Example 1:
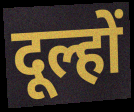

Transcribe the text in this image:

दूल्हों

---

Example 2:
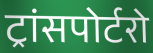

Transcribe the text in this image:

ट्रांसपोर्टरो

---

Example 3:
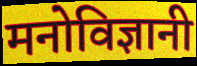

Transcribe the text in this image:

मनोविज्ञानी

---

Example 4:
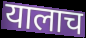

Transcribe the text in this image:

यालाच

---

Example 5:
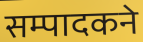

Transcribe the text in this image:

सम्पादकने